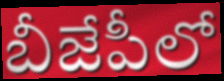
బీజేపీలో